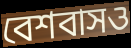
বেশবাসও